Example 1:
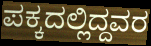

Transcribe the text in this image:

ಪಕ್ಕದಲ್ಲಿದ್ದವರ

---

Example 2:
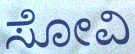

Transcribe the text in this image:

ಸೋವಿ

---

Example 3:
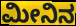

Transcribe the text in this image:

ಮೀನಿನ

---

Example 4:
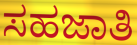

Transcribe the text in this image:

ಸಹಜಾತಿ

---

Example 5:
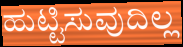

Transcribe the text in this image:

ಹುಟ್ಟಿಸುವುದಿಲ್ಲ